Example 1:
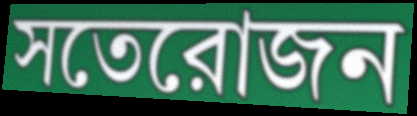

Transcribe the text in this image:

সতেরোজন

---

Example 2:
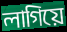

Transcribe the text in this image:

লাগিয়ে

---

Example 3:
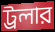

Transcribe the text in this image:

ট্রলার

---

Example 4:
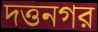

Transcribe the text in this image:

দত্তনগর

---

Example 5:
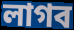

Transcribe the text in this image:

লাগব